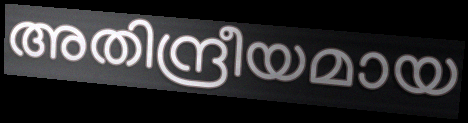
അതിന്ദ്രീയമായ